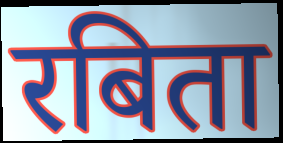
रबिता